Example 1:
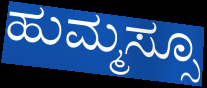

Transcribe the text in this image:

ಹುಮ್ಮಸ್ಸೂ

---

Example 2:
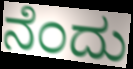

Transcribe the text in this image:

ನೆಂದು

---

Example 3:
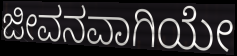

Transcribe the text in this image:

ಜೀವನವಾಗಿಯೇ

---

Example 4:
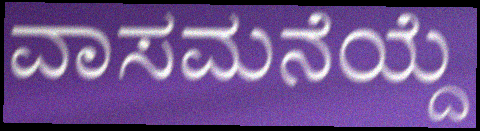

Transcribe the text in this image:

ವಾಸಮನೆಯ್ದೆ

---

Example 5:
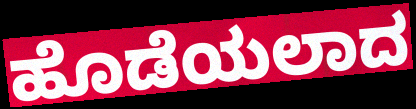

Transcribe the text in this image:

ಹೊಡೆಯಲಾದ